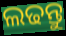
ଲଢନ୍ତୁ